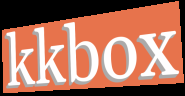
kkbox